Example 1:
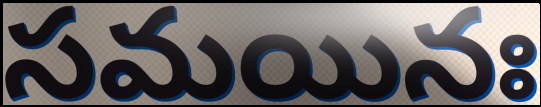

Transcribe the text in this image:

సమయినః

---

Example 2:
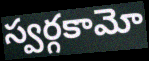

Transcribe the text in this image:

స్వర్గకామో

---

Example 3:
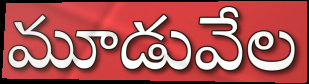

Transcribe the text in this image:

మూడువేల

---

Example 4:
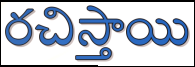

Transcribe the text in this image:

రచిస్తాయి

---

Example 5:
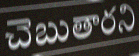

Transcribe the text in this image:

చెబుతారని